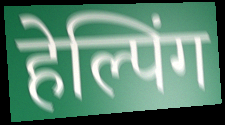
हेल्पिंग